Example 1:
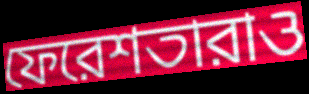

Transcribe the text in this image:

ফেরেশতারাও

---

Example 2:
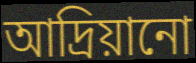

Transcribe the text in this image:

আদ্রিয়ানো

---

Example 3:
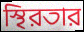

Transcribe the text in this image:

স্থিরতার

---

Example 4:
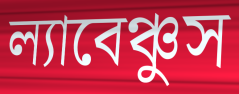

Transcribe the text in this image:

ল্যাবেঞ্চুস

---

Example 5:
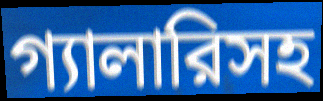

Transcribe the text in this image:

গ্যালারিসহ